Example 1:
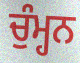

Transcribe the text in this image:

ਚੁੰਮ੍ਹਨ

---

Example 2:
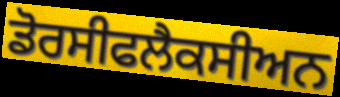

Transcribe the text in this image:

ਡੋਰਸੀਫਲੈਕਸੀਅਨ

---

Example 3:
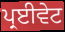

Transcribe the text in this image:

ਪ੍ਰਈਵੇਟ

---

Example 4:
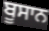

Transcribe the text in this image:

ਬੂਸਾਨ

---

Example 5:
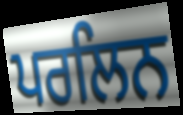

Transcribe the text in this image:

ਪਰਲਿਨ